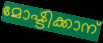
മോഷ്ടിക്കാന്